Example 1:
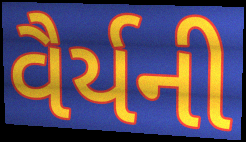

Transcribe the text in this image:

વૈર્યની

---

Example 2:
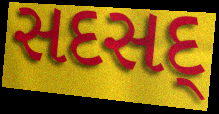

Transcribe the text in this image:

સદસદ્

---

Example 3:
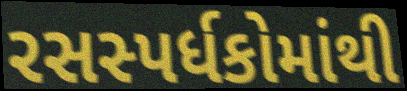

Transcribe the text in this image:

રસસ્પર્ધકોમાંથી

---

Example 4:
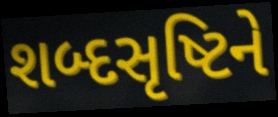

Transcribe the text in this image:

શબ્દસૃષ્ટિને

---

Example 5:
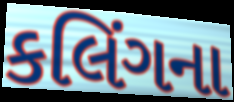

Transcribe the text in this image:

કલિંગના